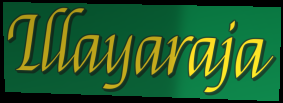
Illayaraja